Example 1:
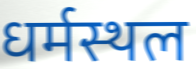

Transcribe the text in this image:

धर्मस्थल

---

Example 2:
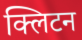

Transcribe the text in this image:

क्लिटन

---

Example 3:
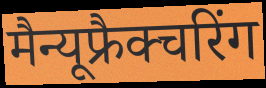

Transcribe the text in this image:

मैन्यूफ्रैक्चरिंग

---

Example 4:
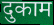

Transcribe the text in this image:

दुकाम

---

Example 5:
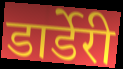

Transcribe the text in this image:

डार्डेरी